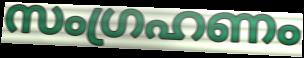
സംഗ്രഹണം